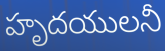
హృదయులనీ